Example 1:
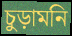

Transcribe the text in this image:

চুড়ামনি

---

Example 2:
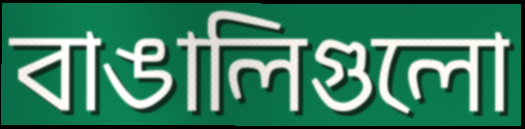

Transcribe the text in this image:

বাঙালিগুলো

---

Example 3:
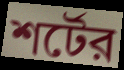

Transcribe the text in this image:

শর্টের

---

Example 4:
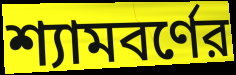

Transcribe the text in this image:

শ্যামবর্ণের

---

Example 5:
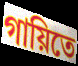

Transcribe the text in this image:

গায়িতে